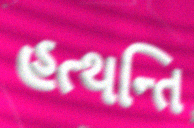
હત્થન્તિ